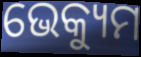
ଭେକ୍ୟୁମ